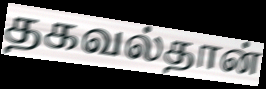
தகவல்தான்